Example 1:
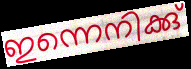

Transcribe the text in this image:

ഇന്നെനിക്കു്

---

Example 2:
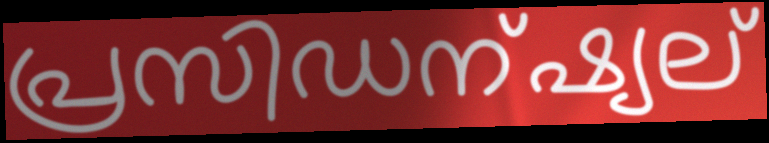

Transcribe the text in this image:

പ്രസിഡന്ഷ്യല്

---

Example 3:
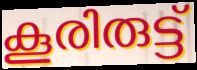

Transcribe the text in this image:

കൂരിരുട്ട്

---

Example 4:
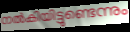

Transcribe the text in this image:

നൽകിയിട്ടുണ്ടെന്നും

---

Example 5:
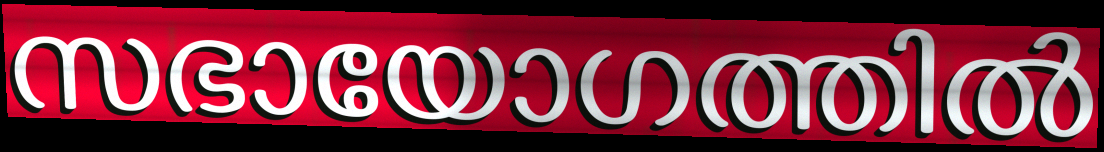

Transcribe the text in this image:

സഭായോഗത്തിൽ